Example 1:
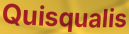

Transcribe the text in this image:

Quisqualis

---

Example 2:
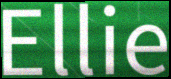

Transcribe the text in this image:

Ellie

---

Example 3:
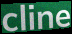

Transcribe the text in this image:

cline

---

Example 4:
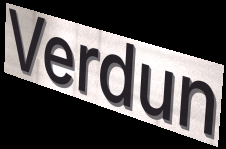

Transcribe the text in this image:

Verdun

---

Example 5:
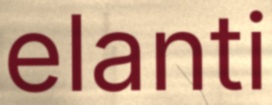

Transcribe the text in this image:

elanti